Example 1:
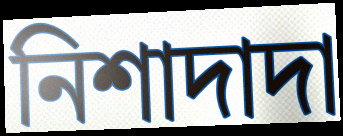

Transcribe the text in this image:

নিশাদাদা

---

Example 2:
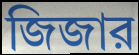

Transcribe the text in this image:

জিজার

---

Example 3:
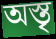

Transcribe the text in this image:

অস্তৃ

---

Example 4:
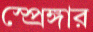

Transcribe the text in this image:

স্প্রেঙ্গার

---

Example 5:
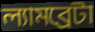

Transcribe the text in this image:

ল্যামব্রেটা